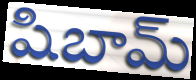
షిబామ్